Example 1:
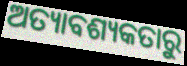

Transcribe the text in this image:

ଅତ୍ୟାବଶ୍ୟକତାରୁ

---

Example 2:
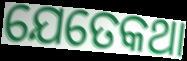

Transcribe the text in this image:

ଯେତେକଥା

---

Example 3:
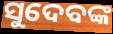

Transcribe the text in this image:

ସୁଦେବଙ୍କ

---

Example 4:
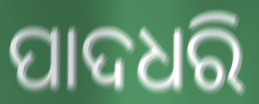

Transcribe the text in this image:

ପାଦଧରି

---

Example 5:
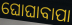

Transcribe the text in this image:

ଘୋଘାବାପା